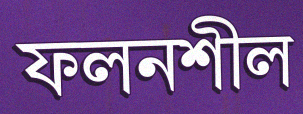
ফলনশীল